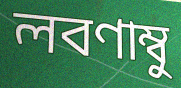
লবণাম্বু